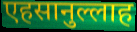
एहसानुल्लाह